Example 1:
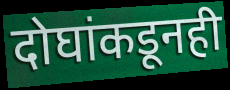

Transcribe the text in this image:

दोघांकडूनही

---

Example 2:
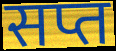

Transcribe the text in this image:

सप्त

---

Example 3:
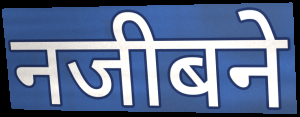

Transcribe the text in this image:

नजीबने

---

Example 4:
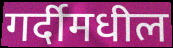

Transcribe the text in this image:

गर्दीमधील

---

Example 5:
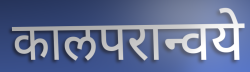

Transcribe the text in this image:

कालपरान्वये